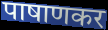
पाषाणकर